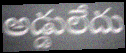
అడ్డులేదు